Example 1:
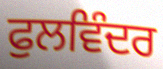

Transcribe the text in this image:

ਫੁਲਵਿੰਦਰ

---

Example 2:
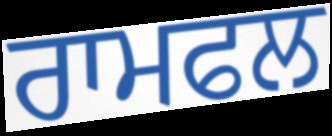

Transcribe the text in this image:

ਰਾਮਫਲ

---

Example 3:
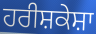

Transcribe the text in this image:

ਹਰੀਸ਼ਕੇਸ਼ਾ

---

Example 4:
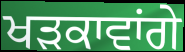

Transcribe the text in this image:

ਖੜਕਾਵਾਂਗੇ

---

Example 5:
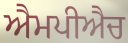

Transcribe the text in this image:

ਐਮਪੀਐਚ